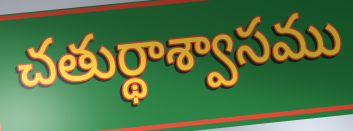
చతుర్థాశ్వాసము